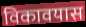
विकावयास